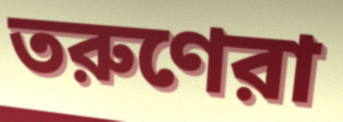
তরুণেরা